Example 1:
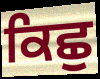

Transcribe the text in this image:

ਕਿਛੁ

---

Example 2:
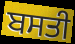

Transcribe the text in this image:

ਬਸਤੀ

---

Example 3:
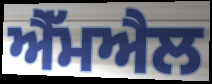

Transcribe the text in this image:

ਐੱਮਐਲ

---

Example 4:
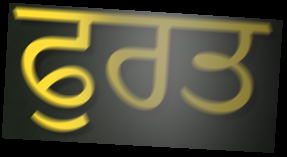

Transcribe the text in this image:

ਫੁਰਤ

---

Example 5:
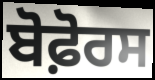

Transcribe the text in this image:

ਬੋਫ਼ੋਰਸ